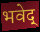
भवेद्